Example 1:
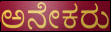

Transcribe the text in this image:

ಅನೇಕರು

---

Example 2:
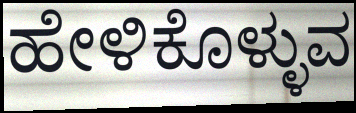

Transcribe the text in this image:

ಹೇಳಿಕೊಳ್ಳುವ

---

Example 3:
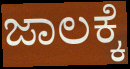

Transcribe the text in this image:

ಜಾಲಕ್ಕೆ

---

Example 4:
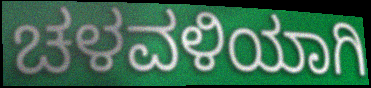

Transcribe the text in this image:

ಚಳವಳಿಯಾಗಿ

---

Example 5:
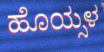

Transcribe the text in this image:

ಹೊಯ್ಸಳ